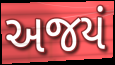
અજયં